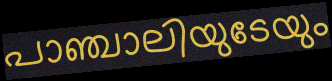
പാഞ്ചാലിയുടേയും